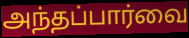
அந்தப்பார்வை